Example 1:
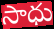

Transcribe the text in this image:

సాధు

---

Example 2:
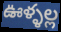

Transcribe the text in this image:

ఊళ్ళల్ల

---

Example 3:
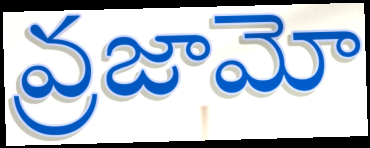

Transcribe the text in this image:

వ్రజామో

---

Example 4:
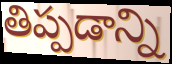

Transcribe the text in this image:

తిప్పడాన్ని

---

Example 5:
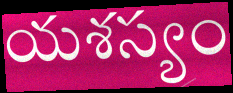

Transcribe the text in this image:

యశస్యం